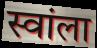
स्वांला